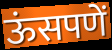
ऊंसपणें